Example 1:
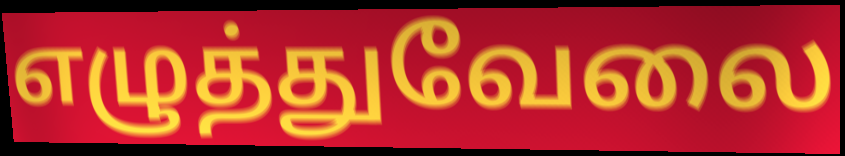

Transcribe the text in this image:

எழுத்துவேலை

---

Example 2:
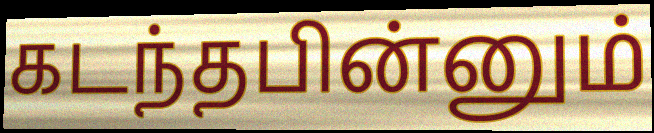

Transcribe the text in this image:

கடந்தபின்னும்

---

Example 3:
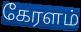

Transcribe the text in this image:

கேரளம்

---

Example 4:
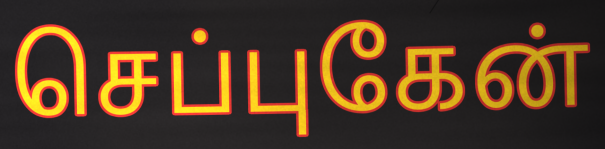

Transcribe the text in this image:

செப்புகேன்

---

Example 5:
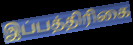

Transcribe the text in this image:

இப்பத்திரிகை